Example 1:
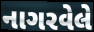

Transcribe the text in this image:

નાગરવેલે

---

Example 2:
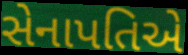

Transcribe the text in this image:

સેનાપતિએ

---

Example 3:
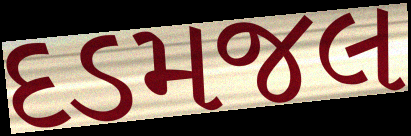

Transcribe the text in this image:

દડમજલ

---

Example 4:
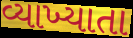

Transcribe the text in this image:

વ્યાખ્યાતા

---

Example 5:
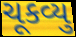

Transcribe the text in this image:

ચૂકવ્યુ